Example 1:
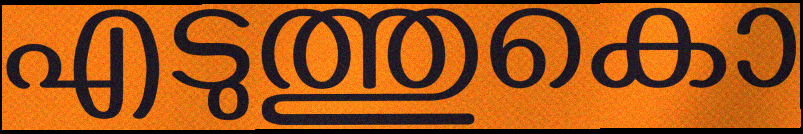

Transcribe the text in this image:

എടുത്തുകൊ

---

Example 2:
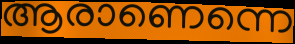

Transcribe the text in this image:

ആരാണെന്നെ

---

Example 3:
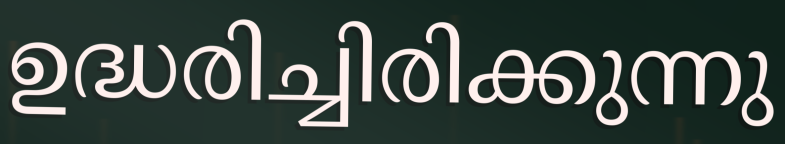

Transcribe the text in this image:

ഉദ്ധരിച്ചിരിക്കുന്നു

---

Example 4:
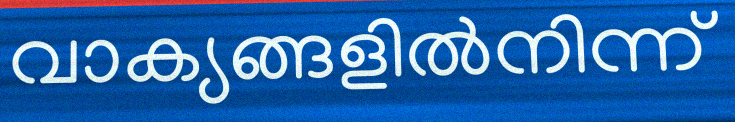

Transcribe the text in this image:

വാക്യങ്ങളിൽനിന്ന്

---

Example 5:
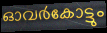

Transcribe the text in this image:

ഓവർകോട്ടും